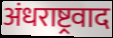
अंधराष्ट्रवाद